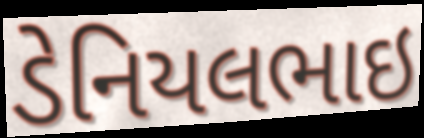
ડેનિયલભાઇ